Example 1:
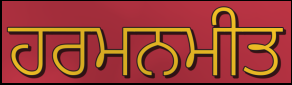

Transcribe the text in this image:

ਹਰਮਨਮੀਤ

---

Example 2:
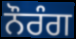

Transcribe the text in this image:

ਨੌਰੰਗ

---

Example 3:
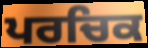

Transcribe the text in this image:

ਪਰਚਿਕ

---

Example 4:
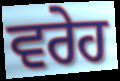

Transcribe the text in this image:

ਵਰੇਹ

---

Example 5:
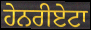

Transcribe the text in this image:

ਹੇਨਰੀਏਟਾ